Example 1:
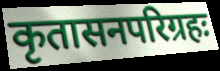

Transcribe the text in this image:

कृतासनपरिग्रहः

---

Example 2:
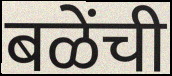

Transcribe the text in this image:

बळेंची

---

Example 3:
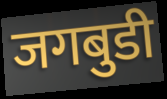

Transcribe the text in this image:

जगबुडी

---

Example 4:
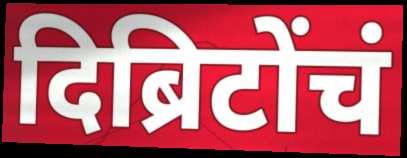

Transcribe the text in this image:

दिब्रिटोंचं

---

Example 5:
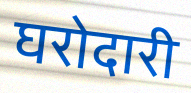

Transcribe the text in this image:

घरोदारी